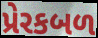
પ્રેરકબળ